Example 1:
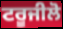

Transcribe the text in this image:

ਟਰੂਜੀਲੋ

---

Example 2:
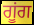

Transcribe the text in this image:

ਗੂਂਗ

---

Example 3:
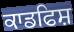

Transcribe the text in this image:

ਕਾਡਫਿਸ਼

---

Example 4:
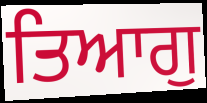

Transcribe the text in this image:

ਤਿਆਗੁ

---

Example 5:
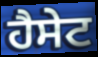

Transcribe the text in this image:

ਹੈਸੇਟ